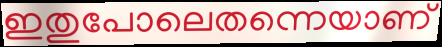
ഇതുപോലെതന്നെയാണ്